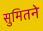
सुमितने